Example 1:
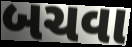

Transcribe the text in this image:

બચવા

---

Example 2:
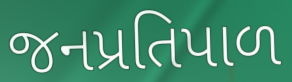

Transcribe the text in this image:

જનપ્રતિપાળ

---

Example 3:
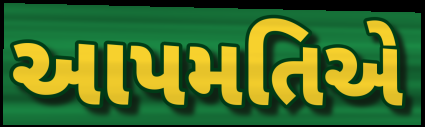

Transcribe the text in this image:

આપમતિએ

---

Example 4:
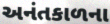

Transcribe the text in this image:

અનંતકાળના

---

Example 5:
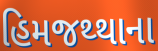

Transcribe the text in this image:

હિમજથ્થાના